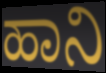
ಹಾನಿ